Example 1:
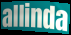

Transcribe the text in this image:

allinda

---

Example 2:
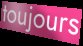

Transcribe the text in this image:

toujours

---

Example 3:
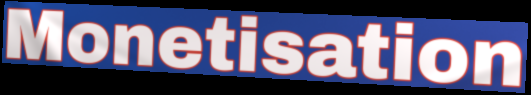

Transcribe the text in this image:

Monetisation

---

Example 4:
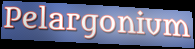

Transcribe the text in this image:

Pelargonium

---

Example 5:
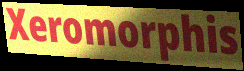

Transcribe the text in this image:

Xeromorphis